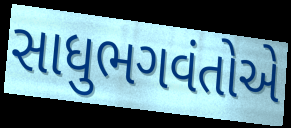
સાધુભગવંતોએ